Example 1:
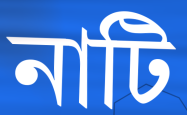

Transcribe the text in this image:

নাটি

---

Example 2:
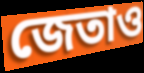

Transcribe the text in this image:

জেতাও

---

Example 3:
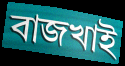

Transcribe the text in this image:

বাজখাই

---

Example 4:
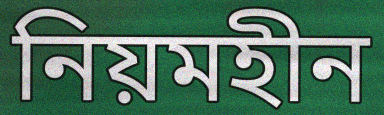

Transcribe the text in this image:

নিয়মহীন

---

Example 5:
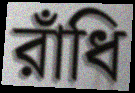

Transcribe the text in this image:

রাঁধি